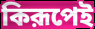
কিরূপেই